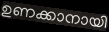
ഉണക്കാനായി